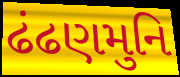
ઢંઢણમુનિ